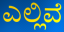
ಎಲ್ಲಿವೆ